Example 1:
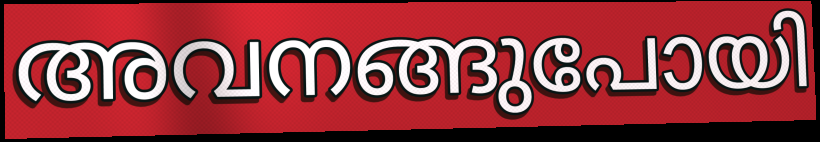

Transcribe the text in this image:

അവനങ്ങുപോയി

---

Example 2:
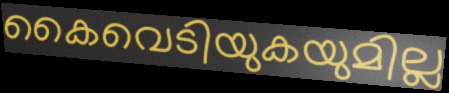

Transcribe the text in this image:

കൈവെടിയുകയുമില്ല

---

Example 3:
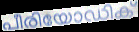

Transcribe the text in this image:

പീരിയോഡിക്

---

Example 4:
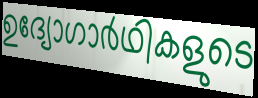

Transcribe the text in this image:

ഉദ്യോഗാർഥികളുടെ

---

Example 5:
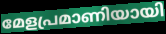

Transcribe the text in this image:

മേളപ്രമാണിയായി